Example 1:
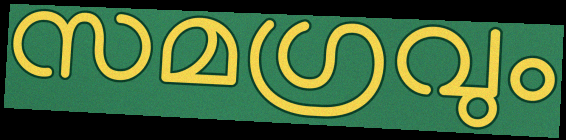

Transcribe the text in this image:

സമഗ്രവും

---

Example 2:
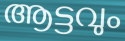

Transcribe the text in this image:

ആട്ടവും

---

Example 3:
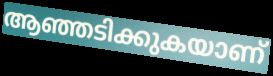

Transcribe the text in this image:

ആഞ്ഞടിക്കുകയാണ്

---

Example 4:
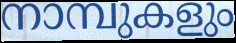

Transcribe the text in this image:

നാമ്പുകളും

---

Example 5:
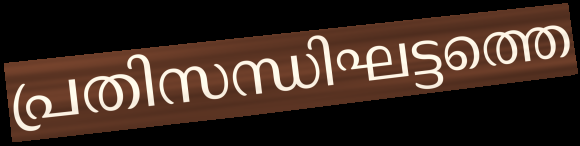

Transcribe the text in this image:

പ്രതിസന്ധിഘട്ടത്തെ